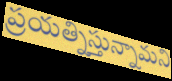
ప్రయత్నిస్తున్నామని